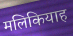
मलिकियाह